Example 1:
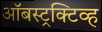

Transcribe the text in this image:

ऑबस्ट्रक्टिव्ह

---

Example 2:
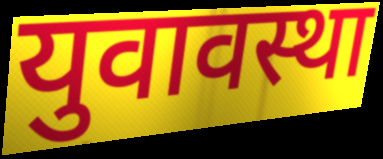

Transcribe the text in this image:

युवावस्था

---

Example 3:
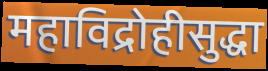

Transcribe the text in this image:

महाविद्रोहीसुद्धा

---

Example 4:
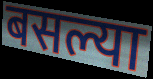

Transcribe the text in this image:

बसल्या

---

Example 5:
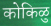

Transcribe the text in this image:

कोकिळु